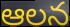
ఆలన